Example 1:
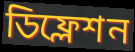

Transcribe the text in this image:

ডিফ্লেশন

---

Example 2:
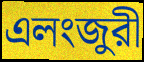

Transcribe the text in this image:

এলংজুরী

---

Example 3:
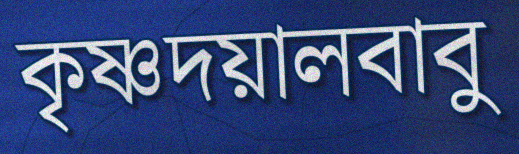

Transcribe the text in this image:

কৃষ্ণদয়ালবাবু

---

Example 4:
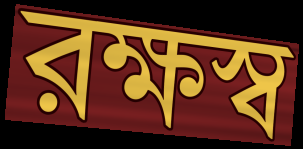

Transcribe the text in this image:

রক্ষস্ব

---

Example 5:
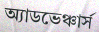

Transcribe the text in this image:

অ্যাডভেঞ্চার্স